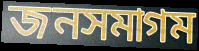
জনসমাগম